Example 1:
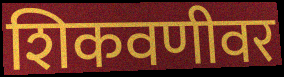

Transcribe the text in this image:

शिकवणीवर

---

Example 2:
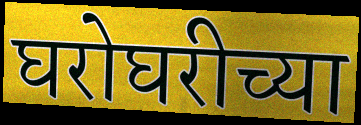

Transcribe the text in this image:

घरोघरीच्या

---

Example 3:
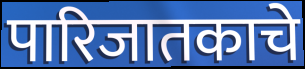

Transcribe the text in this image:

पारिजातकाचे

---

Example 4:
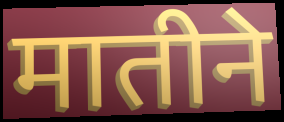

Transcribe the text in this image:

मातीने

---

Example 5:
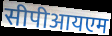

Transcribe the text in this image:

सीपीआयएम